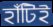
হাঁটিই